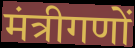
मंत्रीगणों